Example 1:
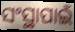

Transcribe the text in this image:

ସଂସ୍ଥାପାଇଁ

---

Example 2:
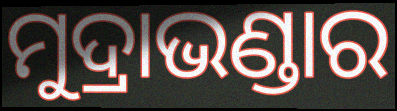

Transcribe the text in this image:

ମୁଦ୍ରାଭଣ୍ଡାର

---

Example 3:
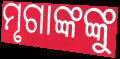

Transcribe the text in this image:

ମୃଗାଙ୍କଙ୍କୁ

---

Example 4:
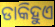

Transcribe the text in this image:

ଡାକିହୁଏ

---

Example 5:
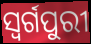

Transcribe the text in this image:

ସ୍ଵର୍ଗପୁରୀ